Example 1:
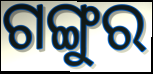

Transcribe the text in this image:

ଗଙ୍ଗୁର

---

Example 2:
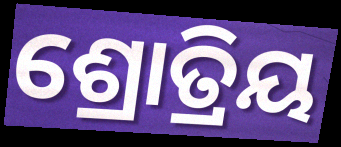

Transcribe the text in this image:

ଶ୍ରୋତ୍ରିୟ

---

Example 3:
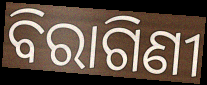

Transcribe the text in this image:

ବିରାଗିଣୀ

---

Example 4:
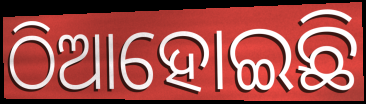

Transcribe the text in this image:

ଠିଆହୋଇଛି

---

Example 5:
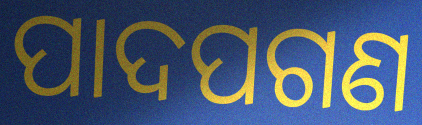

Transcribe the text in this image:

ପାଦପଗଣ